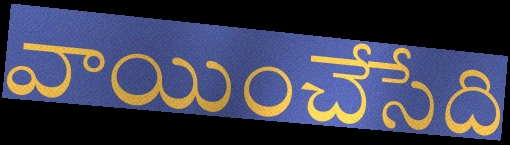
వాయించేసేది